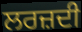
ਲਰਜ਼ਦੀ